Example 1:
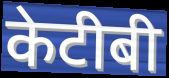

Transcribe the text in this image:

केटीबी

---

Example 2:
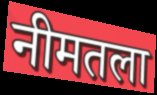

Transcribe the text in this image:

नीमतला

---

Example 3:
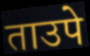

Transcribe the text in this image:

ताउपे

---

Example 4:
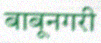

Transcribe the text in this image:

बाबूनगरी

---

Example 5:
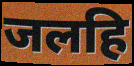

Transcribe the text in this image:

जलहि